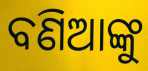
ବଣିଆଙ୍କୁ